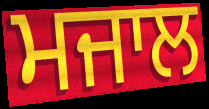
ਮਜਾਲ